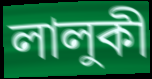
লালুকী